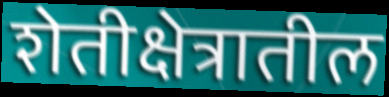
शेतीक्षेत्रातील